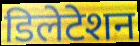
डिलेटेशन